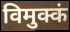
विमुक्कं